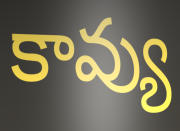
కావ్యు